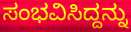
ಸಂಭವಿಸಿದ್ದನ್ನು